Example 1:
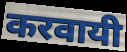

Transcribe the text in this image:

करवायी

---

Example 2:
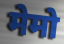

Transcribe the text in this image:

मेमो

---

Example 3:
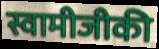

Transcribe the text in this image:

स्वामीजीकी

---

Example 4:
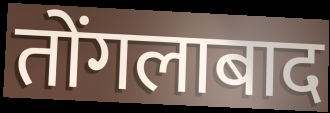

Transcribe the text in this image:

तोंगलाबाद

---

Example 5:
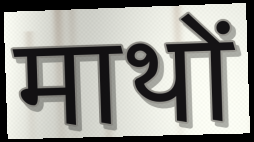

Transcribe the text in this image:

माथों